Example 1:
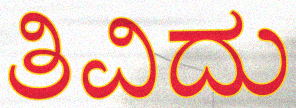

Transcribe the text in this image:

ತಿವಿದು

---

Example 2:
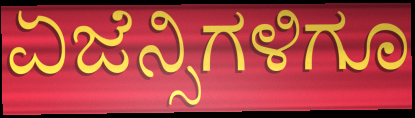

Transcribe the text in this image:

ಏಜೆನ್ಸಿಗಳಿಗೂ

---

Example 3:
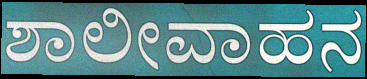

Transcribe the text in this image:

ಶಾಲೀವಾಹನ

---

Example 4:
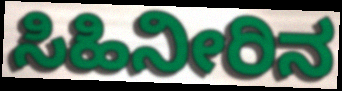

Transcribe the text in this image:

ಸಿಹಿನೀರಿನ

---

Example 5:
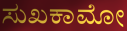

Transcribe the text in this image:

ಸುಖಕಾಮೋ